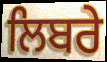
ਲਿਬਰੇ